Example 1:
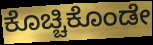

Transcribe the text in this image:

ಕೊಚ್ಚಿಕೊಂಡೇ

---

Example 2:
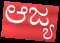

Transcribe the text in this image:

ಆಜ್ಯ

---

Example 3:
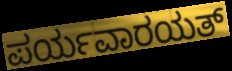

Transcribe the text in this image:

ಪರ್ಯವಾರಯತ್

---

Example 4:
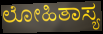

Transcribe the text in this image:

ಲೋಹಿತಾಸ್ಯ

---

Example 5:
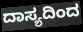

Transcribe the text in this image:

ದಾಸ್ಯದಿಂದ